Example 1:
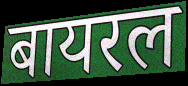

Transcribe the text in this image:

बायरल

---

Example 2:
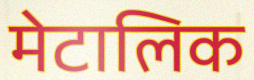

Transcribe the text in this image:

मेटालिक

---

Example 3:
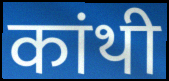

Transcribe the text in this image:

कांथी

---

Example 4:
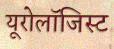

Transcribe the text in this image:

यूरोलॉजिस्ट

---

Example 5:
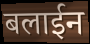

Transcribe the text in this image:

बलाईन